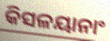
କିସଳୟାନାଂ